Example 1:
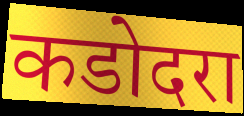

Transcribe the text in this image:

कडोदरा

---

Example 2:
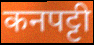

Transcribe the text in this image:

कनपट्टी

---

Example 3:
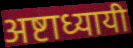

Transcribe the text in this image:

अष्टाध्यायी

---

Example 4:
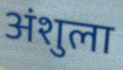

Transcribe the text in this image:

अंशुला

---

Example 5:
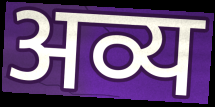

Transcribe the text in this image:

अव्य